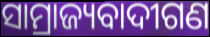
ସାମ୍ରାଜ୍ୟବାଦୀଗଣ